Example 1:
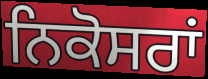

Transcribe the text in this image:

ਨਿਕੋਸਰਾਂ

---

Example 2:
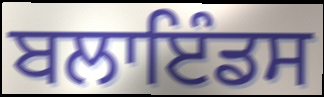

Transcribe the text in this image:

ਬਲਾਇੰਡਸ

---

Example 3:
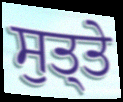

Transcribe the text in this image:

ਸੁਤ੍ਤੇ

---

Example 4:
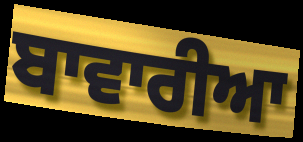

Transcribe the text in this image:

ਬਾਵਾਰੀਆ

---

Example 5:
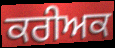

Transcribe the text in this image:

ਕਰੀਅਕ